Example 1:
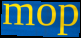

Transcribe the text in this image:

mop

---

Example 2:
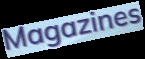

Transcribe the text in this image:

Magazines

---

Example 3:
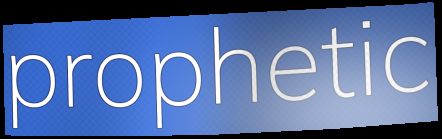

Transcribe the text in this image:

prophetic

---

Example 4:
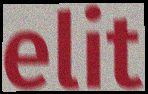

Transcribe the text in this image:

elit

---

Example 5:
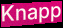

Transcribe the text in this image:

Knapp